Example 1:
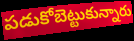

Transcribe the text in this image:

పడుకోబెట్టుకున్నారు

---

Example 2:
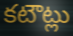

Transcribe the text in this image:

కటౌట్లు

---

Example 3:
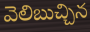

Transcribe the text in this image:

వెలిబుచ్చిన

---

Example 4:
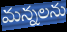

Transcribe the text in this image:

మన్నలను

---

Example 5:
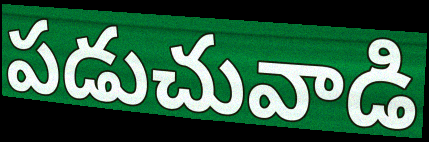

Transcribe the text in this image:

పడుచువాడి